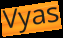
Vyas